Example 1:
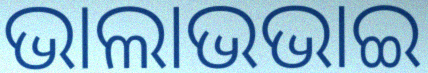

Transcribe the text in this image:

ଭାଲାଭଭାଇ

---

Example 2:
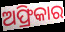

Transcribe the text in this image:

ଅଫ୍ରିକାର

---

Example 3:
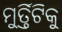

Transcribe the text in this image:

ମୁର୍ତ୍ତିଟିକୁ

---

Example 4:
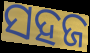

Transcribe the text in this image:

ସହଜ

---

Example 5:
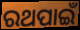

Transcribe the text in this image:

ରଥପାଇଁ